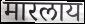
मारलाय